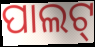
ପାଲଟ୍